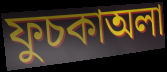
ফুচকাঅলা